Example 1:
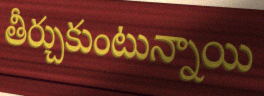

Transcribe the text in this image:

తీర్చుకుంటున్నాయి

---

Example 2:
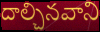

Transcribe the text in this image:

దాల్చినవాని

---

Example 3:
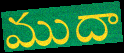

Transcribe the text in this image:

ముదా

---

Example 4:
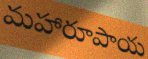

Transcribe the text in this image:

మహారూపాయ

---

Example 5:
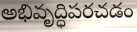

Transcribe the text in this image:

అభివృద్ధిపరచడం